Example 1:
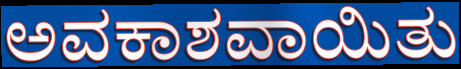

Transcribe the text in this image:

ಅವಕಾಶವಾಯಿತು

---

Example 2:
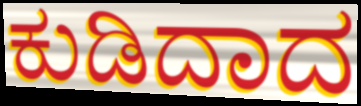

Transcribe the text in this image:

ಕುಡಿದಾದ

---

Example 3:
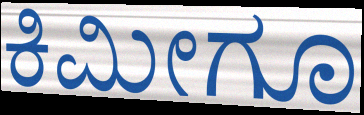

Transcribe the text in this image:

ಕಿಮೀಗೂ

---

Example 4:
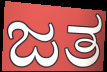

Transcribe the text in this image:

ಜತ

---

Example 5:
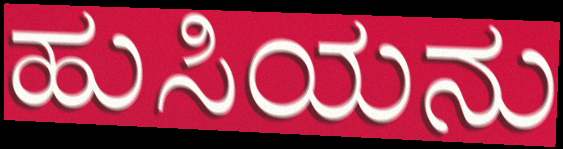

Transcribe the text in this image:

ಹುಸಿಯನು